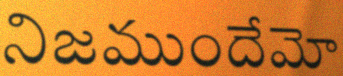
నిజముందేమో